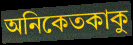
অনিকেতকাকু